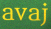
avaj